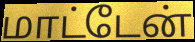
மாட்டேன்